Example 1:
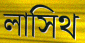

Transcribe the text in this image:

লাসিথ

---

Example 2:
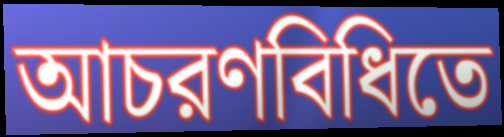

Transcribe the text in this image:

আচরণবিধিতে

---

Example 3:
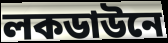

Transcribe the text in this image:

লকডাউনে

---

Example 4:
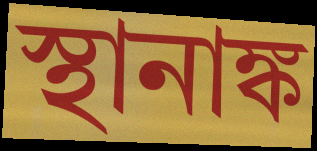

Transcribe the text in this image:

স্থানাঙ্ক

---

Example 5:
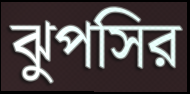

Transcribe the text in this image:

ঝুপসির